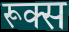
रूक्स